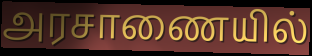
அரசாணையில்